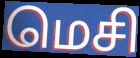
மெசி